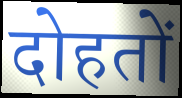
दोहतों